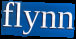
flynn